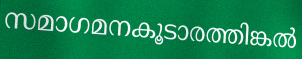
സമാഗമനകൂടാരത്തിങ്കൽ